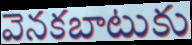
వెనకబాటుకు